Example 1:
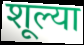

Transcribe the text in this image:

शूल्या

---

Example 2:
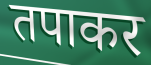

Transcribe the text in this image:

तपाकर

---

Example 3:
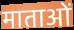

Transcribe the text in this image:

माताओं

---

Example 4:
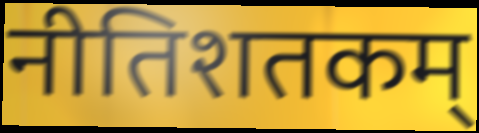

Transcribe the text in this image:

नीतिशतकम्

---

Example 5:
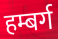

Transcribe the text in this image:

हम्बर्ग